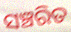
ସଞ୍ଚରିତ